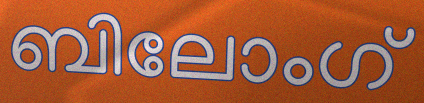
ബിലോംഗ്